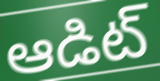
ఆడిట్